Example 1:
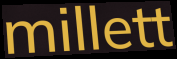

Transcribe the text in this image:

millett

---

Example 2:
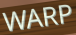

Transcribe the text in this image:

WARP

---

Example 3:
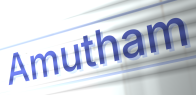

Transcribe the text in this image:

Amutham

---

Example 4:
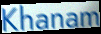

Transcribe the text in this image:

Khanam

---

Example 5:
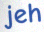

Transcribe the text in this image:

jeh